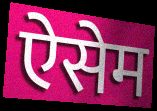
ऐसेम